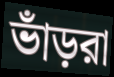
ভাঁড়রা